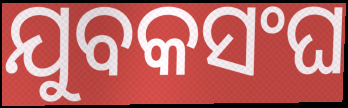
ଯୁବକସଂଘ